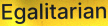
Egalitarian